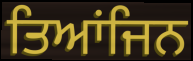
ਤਿਆਂਜਿਨ